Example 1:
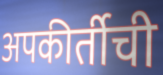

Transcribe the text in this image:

अपकीर्तीची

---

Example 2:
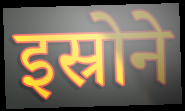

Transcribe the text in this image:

इस्रोने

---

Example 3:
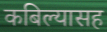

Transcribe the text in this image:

कबिल्यासह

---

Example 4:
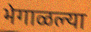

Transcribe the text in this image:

भेगाळल्या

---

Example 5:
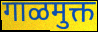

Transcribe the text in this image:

गाळमुक्त